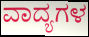
ವಾದ್ಯಗಳ